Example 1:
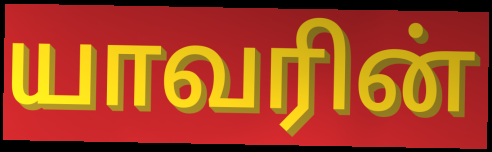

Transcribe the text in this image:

யாவரின்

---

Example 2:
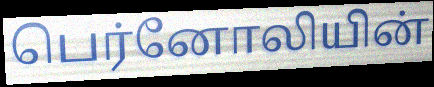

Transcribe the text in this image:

பெர்னோலியின்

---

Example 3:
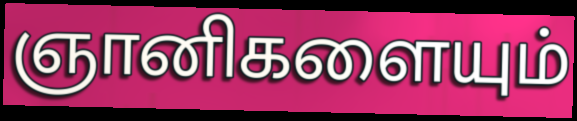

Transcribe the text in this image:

ஞானிகளையும்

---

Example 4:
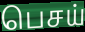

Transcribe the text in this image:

பெசய்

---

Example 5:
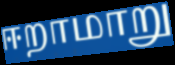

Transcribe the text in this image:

ஈறாமாறு